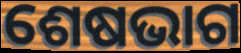
ଶେଷଭାଗ